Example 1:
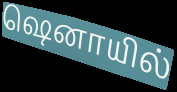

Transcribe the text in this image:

ஷெனாயில்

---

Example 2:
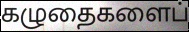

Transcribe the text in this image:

கழுதைகளைப்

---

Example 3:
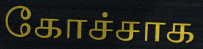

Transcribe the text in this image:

கோச்சாக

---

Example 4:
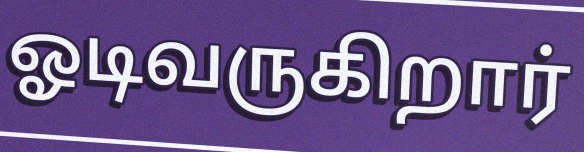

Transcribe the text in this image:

ஓடிவருகிறார்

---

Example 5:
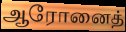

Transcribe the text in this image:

ஆரோனைத்